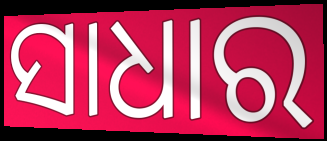
ସାଧାର